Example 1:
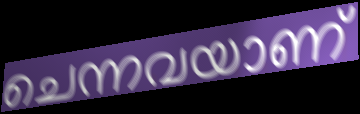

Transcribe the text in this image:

ചെന്നവയാണ്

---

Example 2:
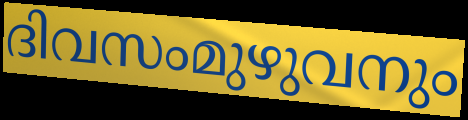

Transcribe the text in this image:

ദിവസംമുഴുവനും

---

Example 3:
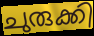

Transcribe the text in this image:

ചുരുക്കി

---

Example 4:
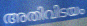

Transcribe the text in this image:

അതിവിടയം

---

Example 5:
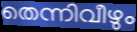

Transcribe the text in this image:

തെന്നിവീഴും